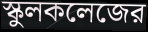
স্কুলকলেজের